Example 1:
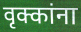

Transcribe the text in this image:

वृक्कांना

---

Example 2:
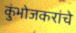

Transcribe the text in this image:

कुंभोजकरांचे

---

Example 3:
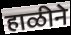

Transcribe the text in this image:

हाळीने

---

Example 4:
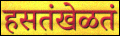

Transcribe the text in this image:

हसतंखेळतं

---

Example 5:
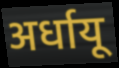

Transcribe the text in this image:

अर्धायू